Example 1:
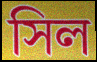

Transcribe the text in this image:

সিল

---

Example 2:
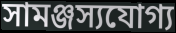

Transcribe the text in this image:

সামঞ্জস্যযোগ্য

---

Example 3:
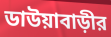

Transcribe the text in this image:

ডাউয়াবাড়ীর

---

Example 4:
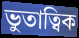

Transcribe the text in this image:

ভুতাত্বিক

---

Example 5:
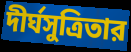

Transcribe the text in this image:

দীর্ঘসুত্রিতার